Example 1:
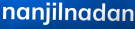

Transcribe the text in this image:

nanjilnadan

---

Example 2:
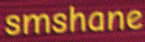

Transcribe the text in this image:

smshane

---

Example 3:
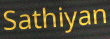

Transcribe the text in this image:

Sathiyan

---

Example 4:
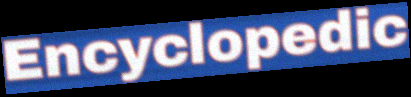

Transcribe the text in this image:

Encyclopedic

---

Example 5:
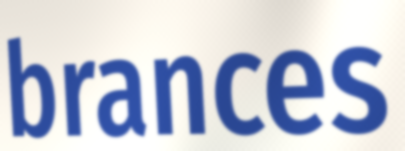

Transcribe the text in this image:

brances